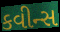
કવીન્સ